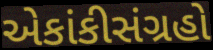
એકાંકીસંગ્રહો